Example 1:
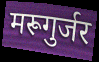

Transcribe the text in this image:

मरूगुर्जर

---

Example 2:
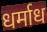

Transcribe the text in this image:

धर्माध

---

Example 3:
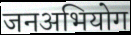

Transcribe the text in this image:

जनअभियोग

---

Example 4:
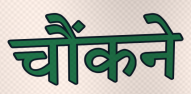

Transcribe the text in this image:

चौंकने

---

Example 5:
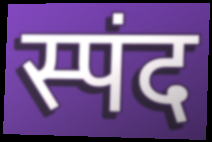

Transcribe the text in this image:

स्पंद